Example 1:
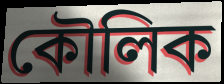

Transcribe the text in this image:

কৌলিক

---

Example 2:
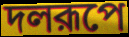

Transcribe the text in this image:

দলরূপে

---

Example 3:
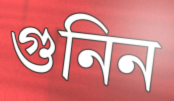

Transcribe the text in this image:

গুনিন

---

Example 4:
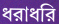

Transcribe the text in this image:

ধরাধরি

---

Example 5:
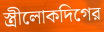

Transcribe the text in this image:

স্ত্রীলোকদিগের